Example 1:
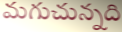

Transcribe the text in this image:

మగుచున్నది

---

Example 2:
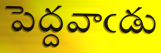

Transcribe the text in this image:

పెద్దవాఁడు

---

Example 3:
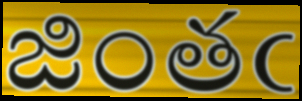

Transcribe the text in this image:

జింతఁ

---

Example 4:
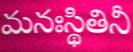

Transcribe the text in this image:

మనఃస్థితినీ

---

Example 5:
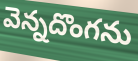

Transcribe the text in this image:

వెన్నదొంగను